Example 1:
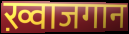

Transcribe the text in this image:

ख़्वाजगान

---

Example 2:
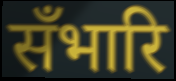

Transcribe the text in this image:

सँभारि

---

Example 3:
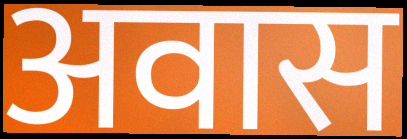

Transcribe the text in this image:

अवास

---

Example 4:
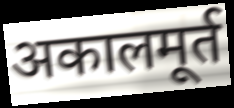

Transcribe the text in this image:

अकालमूर्त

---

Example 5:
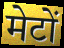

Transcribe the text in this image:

मेटों